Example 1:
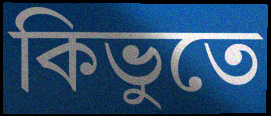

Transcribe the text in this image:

কিভুতে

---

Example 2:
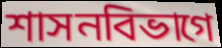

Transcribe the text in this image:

শাসনবিভাগে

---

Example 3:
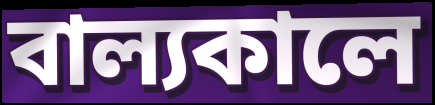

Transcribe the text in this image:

বাল্যকালে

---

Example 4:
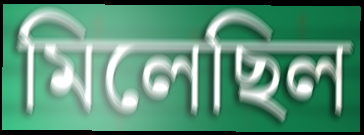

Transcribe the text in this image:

মিলেছিল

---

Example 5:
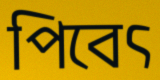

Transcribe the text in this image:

পিবেৎ